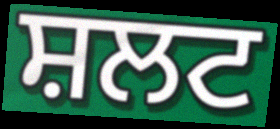
ਸ਼ਲਟ